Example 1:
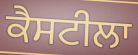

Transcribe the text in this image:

ਕੈਸਟੀਲਾ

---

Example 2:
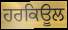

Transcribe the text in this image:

ਹਰਕਿਊਲ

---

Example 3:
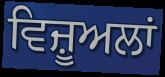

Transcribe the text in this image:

ਵਿਜ਼ੂਅਲਾਂ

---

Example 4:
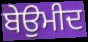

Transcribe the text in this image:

ਬੇਉਮੀਦ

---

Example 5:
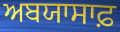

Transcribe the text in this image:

ਅਬਯਾਸਾਫ਼